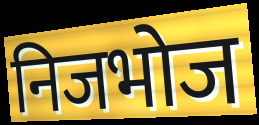
निजभोज